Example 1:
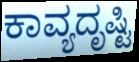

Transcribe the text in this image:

ಕಾವ್ಯದೃಷ್ಟಿ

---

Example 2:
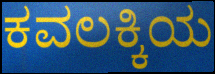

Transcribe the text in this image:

ಕವಲಕ್ಕಿಯ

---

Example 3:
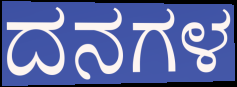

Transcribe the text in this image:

ದನಗಳ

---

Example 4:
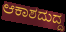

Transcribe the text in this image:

ಆಕಾಶದುದ್ದ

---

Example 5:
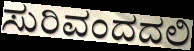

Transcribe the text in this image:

ಸುರಿವಂದದಲಿ